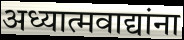
अध्यात्मवाद्यांना